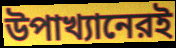
উপাখ্যানেরই